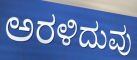
ಅರಳಿದುವು